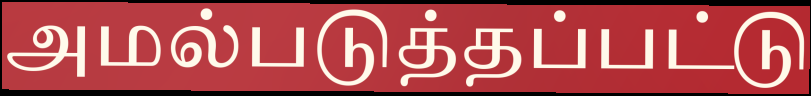
அமல்படுத்தப்பட்டு